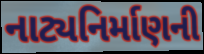
નાટ્યનિર્માણની